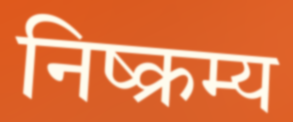
निष्क्रम्य